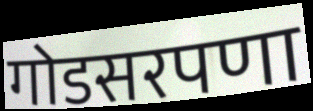
गोडसरपणा